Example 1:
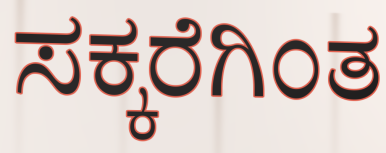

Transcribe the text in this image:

ಸಕ್ಕರೆಗಿಂತ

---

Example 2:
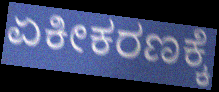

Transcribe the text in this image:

ಏಕೀಕರಣಕ್ಕೆ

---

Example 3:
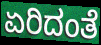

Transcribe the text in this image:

ಏರಿದಂತೆ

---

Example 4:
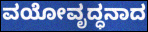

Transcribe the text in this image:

ವಯೋವೃದ್ಧನಾದ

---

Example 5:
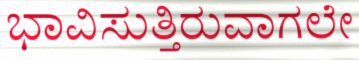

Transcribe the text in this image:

ಭಾವಿಸುತ್ತಿರುವಾಗಲೇ